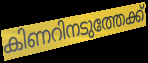
കിണറിനടുത്തേക്ക്